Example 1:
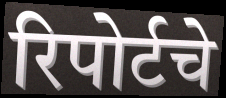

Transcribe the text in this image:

रिपोर्टचे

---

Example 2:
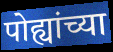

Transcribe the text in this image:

पोह्यांच्या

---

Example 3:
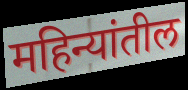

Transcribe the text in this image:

महिन्यांतील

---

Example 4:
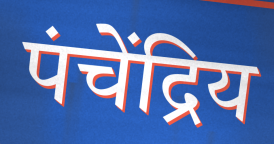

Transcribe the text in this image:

पंचेंद्रिय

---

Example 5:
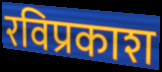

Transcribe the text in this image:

रविप्रकाश